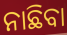
ନାଛିବା